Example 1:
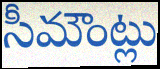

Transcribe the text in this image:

సీమౌంట్లు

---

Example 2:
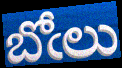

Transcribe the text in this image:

బోఁలు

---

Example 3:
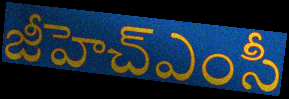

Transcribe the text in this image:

జీహెచ్ఎంసీ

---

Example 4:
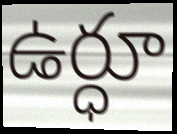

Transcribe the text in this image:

ఉర్ధూ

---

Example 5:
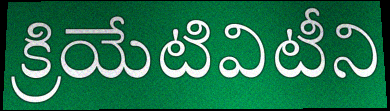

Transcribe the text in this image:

క్రియేటివిటీని